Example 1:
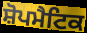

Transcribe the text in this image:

ਸ਼ੋਪਮੈਟਿਕ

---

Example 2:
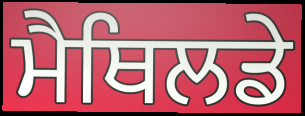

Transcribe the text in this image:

ਮੈਥਿਲਡੇ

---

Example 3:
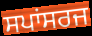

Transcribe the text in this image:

ਸਪਾਂਸਰਜ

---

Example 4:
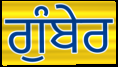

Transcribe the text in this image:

ਗੁੰਬੇਰ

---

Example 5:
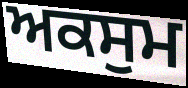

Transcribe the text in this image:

ਅਕਸੁਮ